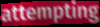
attempting